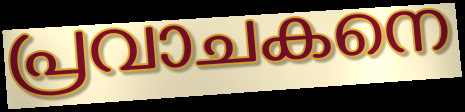
പ്രവാചകനെ